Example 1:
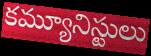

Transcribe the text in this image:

కమ్యూనిస్టులు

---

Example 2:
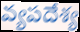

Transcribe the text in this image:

వ్యపదేశ్య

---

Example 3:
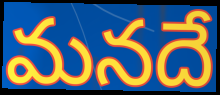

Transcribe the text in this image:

మనదే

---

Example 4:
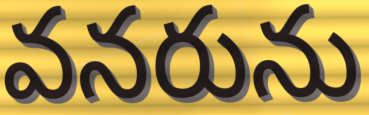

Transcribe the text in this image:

వనరును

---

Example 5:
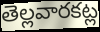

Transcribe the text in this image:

తెల్లవారకట్ల